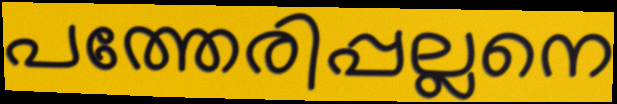
പത്തേരിപ്പല്ലനെ